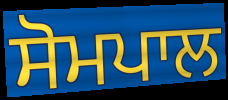
ਸੋਮਪਾਲ